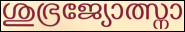
ശുഭ്രജ്യോത്സ്നാ